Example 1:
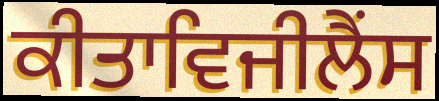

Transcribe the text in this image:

ਕੀਤਾਵਿਜੀਲੈਂਸ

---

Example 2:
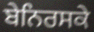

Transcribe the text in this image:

ਬੇਨਿਰਸਕੇ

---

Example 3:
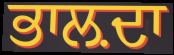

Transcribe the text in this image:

ਭਾਲ਼ਦਾ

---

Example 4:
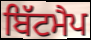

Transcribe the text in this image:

ਬਿੱਟਮੈਪ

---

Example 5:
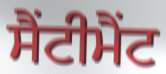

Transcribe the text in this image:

ਸੈਂਟੀਮੈਂਟ